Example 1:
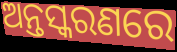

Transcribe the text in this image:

ଅନ୍ତସ୍କରଣରେ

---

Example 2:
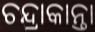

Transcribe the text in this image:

ଚନ୍ଦ୍ରାକାନ୍ତା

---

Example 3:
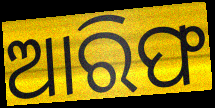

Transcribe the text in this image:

ଆରିଫ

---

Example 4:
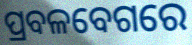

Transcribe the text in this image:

ପ୍ରବଳବେଗରେ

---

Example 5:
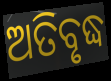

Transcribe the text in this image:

ଅତିବୃଦ୍ଧ